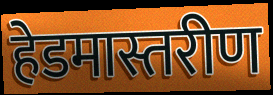
हेडमास्तरीण